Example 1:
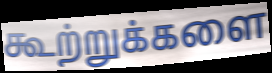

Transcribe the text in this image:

கூற்றுக்களை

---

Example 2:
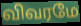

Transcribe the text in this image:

விவரமே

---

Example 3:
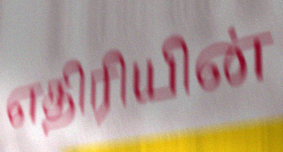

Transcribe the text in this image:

எதிரியின்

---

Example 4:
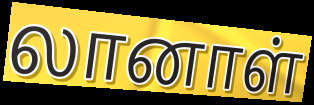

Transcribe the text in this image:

லானாள்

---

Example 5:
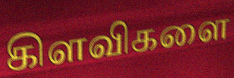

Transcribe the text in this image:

கிளவிகளை